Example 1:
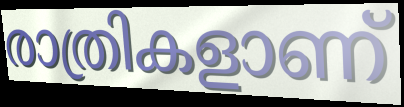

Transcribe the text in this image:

രാത്രികളാണ്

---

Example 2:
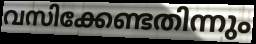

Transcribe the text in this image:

വസിക്കേണ്ടതിന്നും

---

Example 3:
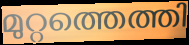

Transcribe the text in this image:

മുറ്റത്തെത്തി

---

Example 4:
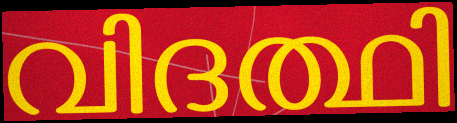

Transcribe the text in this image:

വിദത്ഥി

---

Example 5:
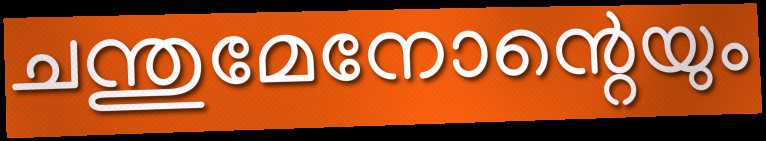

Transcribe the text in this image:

ചന്തുമേനോന്റെയും